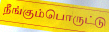
நீங்கும்பொருட்டு